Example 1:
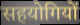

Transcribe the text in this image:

सहयोगियों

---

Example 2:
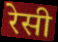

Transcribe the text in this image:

रेसी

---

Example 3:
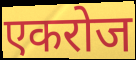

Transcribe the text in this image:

एकरोज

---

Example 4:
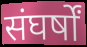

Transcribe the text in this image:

संघर्षों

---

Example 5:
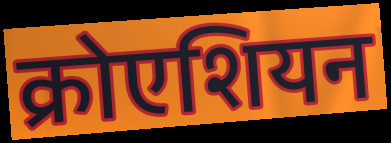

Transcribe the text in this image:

क्रोएशियन